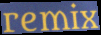
remix